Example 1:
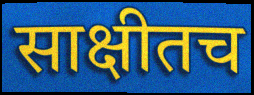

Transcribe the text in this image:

साक्षीतच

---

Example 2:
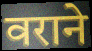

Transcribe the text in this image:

वराने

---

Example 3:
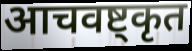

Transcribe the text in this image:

आचवष्ट्कृत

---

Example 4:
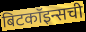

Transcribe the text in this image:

बिटकॉइन्सची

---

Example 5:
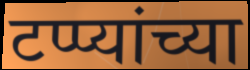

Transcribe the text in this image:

टप्प्यांच्या